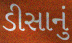
ડીસાનું